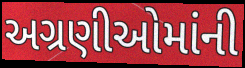
અગ્રણીઓમાંની